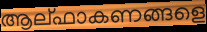
ആല്ഫാകണങ്ങളെ